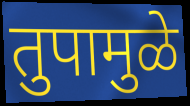
तुपामुळे